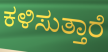
ಕಳಿಸುತ್ತಾರೆ